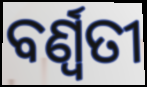
ବର୍ଣ୍ବତୀ